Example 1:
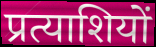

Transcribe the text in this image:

प्रत्याशियों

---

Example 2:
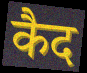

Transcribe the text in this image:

कैद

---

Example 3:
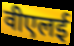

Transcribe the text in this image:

वीएलई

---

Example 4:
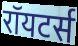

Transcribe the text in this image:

रॉयटर्स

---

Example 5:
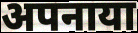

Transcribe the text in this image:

अपनाया